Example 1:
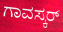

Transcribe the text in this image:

ಗಾವಸ್ಕರ್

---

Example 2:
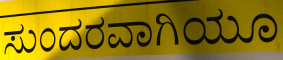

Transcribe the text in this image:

ಸುಂದರವಾಗಿಯೂ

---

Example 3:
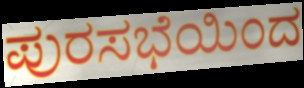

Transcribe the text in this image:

ಪುರಸಭೆಯಿಂದ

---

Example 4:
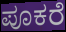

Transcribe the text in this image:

ಪೂಕರೆ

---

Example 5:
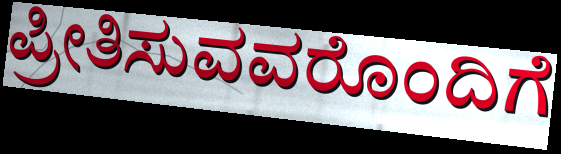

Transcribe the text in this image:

ಪ್ರೀತಿಸುವವರೊಂದಿಗೆ